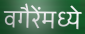
वगैरेंमध्ये